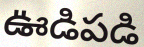
ఊడిపడి